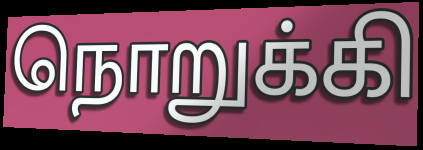
நொறுக்கி